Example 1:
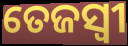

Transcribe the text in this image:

ତେଜସ୍ବୀ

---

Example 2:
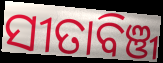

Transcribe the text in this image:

ସୀତାବିଞ୍ଜ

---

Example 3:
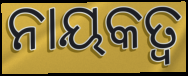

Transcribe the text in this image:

ନାୟକତ୍ୱ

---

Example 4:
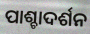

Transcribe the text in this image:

ପାଶ୍ଚାଦର୍ଶନ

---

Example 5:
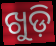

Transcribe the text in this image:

ଖୁଡ଼ି